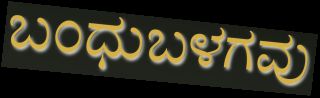
ಬಂಧುಬಳಗವು